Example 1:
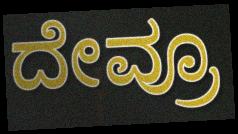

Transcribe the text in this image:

ದೇವ್ರೂ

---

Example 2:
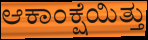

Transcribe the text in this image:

ಆಕಾಂಕ್ಷೆಯಿತ್ತು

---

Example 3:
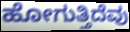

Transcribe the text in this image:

ಹೋಗುತ್ತಿದೆವು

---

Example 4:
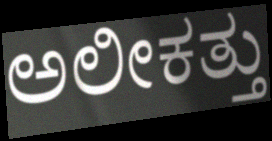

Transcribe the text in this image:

ಅಲೀಕತ್ತು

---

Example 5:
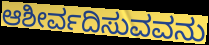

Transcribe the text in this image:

ಆಶೀರ್ವದಿಸುವವನು